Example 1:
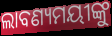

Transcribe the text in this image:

ଲାବଣ୍ୟମୟୀଙ୍କୁ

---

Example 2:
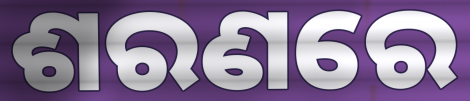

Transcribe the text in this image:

ଶରଣରେ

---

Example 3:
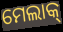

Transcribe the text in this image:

ମେଲାକ୍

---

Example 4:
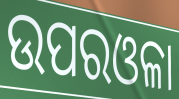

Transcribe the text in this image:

ଉପରଓଳା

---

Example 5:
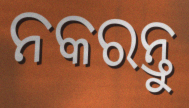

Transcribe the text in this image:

ନକରନ୍ତୁ